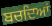
ਬਚਦਿਆਂ